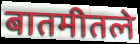
बातमीतले